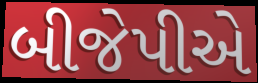
બીજેપીએ